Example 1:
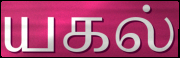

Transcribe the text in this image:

யகல்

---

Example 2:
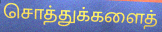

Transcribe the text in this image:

சொத்துக்களைத்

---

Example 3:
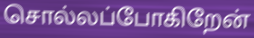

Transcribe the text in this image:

சொல்லப்போகிறேன்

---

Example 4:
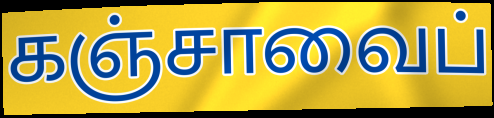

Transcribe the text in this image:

கஞ்சாவைப்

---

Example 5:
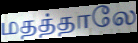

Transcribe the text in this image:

மதத்தாலே